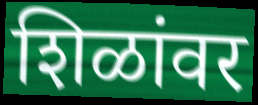
शिळांवर